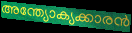
അന്ത്യോക്യക്കാരൻ